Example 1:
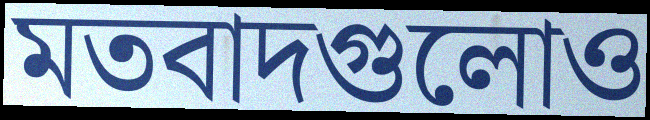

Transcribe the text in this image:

মতবাদগুলোও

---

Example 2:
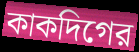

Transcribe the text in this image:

কাকদিগের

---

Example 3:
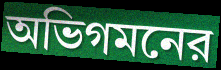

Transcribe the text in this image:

অভিগমনের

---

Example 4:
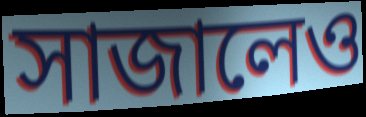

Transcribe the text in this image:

সাজালেও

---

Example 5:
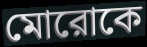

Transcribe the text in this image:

মোরোকে